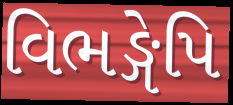
વિભઙ્ગેપિ